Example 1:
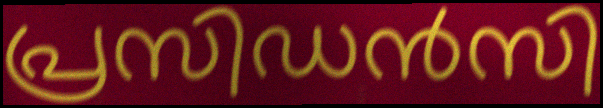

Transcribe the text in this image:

പ്രസിഡൻസി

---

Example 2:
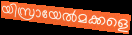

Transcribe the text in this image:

യിസ്രായേൽമക്കളെ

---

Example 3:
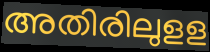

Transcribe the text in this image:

അതിരിലുളള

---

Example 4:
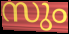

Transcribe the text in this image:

സും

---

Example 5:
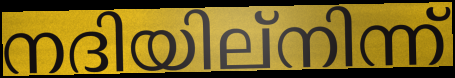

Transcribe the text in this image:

നദിയില്നിന്ന്